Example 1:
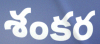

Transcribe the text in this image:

శంకర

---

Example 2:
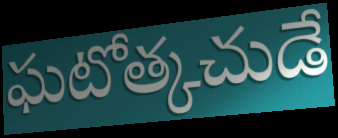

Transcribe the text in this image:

ఘటోత్కచుడే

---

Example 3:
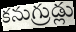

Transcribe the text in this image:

కనుగ్రుడ్లు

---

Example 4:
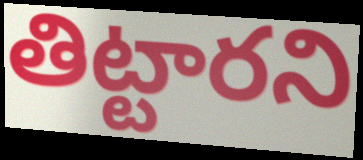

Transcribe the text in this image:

తిట్టారని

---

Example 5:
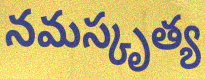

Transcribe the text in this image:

నమస్కృత్య